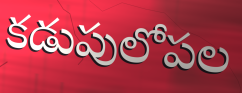
కడుపులోపల